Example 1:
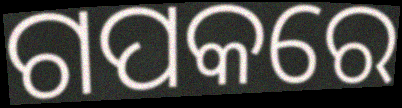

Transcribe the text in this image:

ଗପକରେ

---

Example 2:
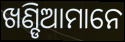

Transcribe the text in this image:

ଖଣ୍ଡିଆମାନେ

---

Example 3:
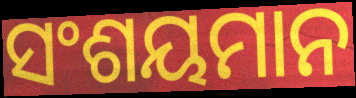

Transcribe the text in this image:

ସଂଶୟମାନ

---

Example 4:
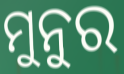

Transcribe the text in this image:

ମୁନୁର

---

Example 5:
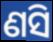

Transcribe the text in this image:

ଣସି